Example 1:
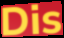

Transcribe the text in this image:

Dis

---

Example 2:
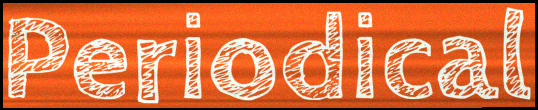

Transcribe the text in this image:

Periodical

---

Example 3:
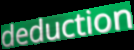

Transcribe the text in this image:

deduction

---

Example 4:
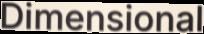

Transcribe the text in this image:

Dimensional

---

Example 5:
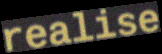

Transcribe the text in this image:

realise